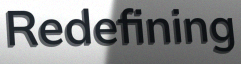
Redefining